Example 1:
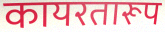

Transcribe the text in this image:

कायरतारूप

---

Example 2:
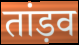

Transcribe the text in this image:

तांड़व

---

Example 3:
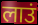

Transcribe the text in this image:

लाउं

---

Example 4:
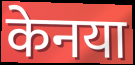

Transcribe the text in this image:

केनया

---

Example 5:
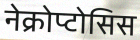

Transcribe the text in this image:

नेक्रोप्टोसिस